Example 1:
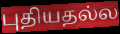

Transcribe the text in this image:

புதியதல்ல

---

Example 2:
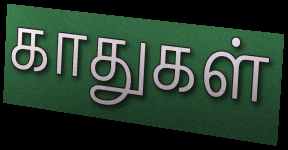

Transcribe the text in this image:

காதுகள்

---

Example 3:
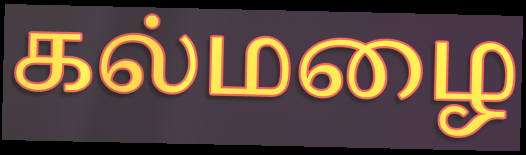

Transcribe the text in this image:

கல்மழை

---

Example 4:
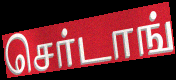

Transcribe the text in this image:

செர்டாங்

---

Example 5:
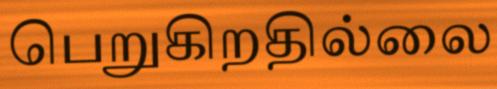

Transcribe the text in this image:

பெறுகிறதில்லை